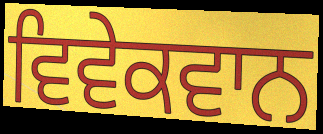
ਵਿਵੇਕਵਾਨ